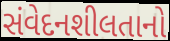
સંવેદનશીલતાનો